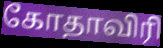
கோதாவிரி